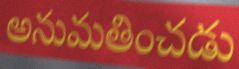
అనుమతించడు